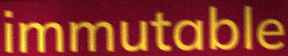
immutable